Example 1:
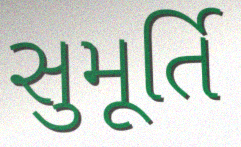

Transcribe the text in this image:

સુમૂર્તિ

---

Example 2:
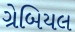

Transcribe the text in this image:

ગ્રેબિયલ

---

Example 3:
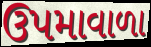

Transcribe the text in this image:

ઉપમાવાળા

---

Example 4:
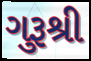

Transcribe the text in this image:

ગુરૂશ્રી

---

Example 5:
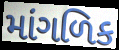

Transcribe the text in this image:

માંગળિક